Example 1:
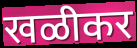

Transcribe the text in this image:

खळीकर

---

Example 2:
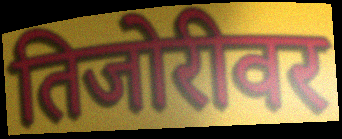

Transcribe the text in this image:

तिजोरीवर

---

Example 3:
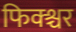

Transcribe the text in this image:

फिक्श्चर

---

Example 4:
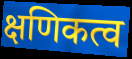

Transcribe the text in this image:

क्षणिकत्व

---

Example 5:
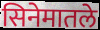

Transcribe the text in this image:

सिनेमातले